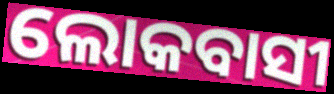
ଲୋକବାସୀ